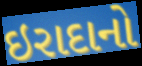
ઇરાદાનો